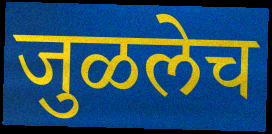
जुळलेच